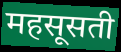
महसूसती